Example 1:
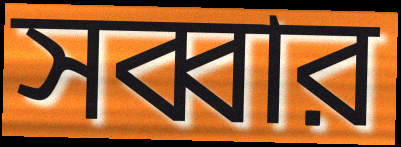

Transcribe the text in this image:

সব্বার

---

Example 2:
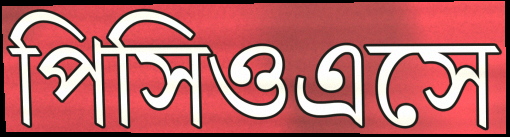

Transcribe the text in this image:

পিসিওএসে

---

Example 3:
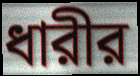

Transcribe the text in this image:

ধারীর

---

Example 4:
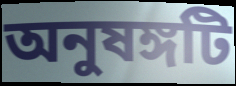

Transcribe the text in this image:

অনুষঙ্গটি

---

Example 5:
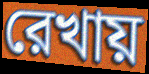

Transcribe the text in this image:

রেখায়